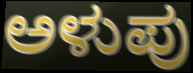
ಅಳುಪು